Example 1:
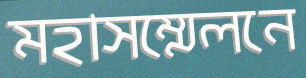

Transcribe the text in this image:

মহাসম্মেলনে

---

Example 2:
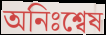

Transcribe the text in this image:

অনিঃশ্বেষ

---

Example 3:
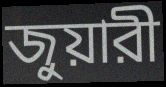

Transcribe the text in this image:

জুয়ারী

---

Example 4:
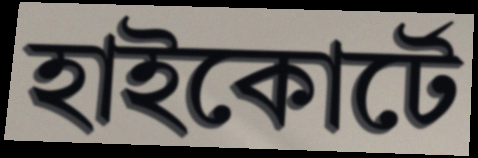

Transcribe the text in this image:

হাইকোর্টে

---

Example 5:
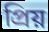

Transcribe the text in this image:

প্রিয়